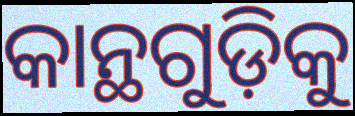
କାନ୍ଥଗୁଡ଼ିକୁ